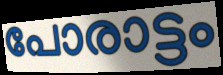
പോരാട്ടം